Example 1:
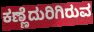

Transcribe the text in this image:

ಕಣ್ಣೆದುರಿಗಿರುವ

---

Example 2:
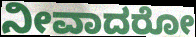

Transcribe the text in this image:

ನೀವಾದರೋ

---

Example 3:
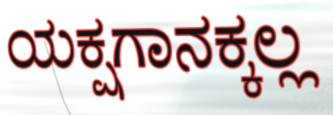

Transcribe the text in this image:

ಯಕ್ಷಗಾನಕ್ಕಲ್ಲ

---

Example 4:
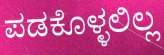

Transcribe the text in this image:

ಪಡಕೊಳ್ಳಲಿಲ್ಲ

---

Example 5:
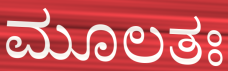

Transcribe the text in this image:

ಮೂಲತಃ